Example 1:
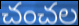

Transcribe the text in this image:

చంచల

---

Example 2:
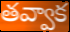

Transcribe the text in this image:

తవ్వాక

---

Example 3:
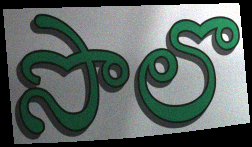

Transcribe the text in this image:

సొలొ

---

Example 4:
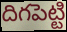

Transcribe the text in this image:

దిగపెట్టి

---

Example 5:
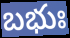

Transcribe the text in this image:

బభుః